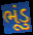
ભૂંડુ